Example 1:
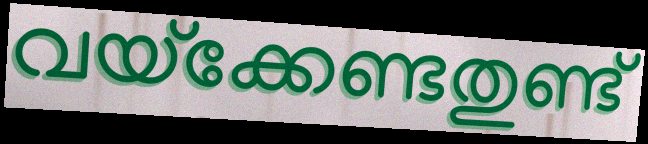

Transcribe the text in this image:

വയ്‌ക്കേണ്ടതുണ്ട്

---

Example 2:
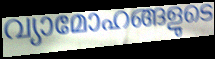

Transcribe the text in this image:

വ്യാമോഹങ്ങളുടെ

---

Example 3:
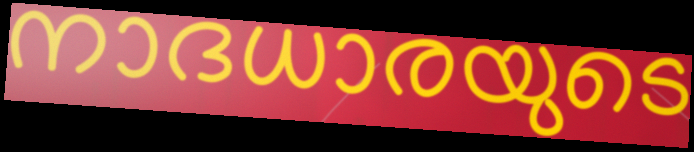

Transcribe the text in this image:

നാദധാരയുടെ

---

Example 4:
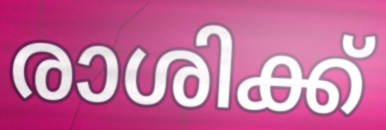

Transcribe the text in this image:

രാശിക്ക്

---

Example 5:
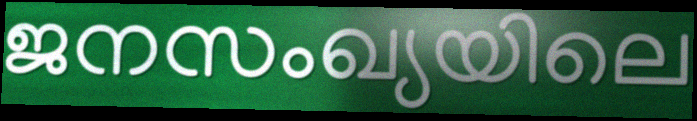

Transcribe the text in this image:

ജനസംഖ്യയിലെ